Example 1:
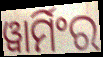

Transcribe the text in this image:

ୱାର୍ମିଂର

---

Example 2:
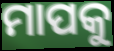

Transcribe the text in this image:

ମାପକୁ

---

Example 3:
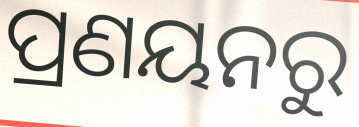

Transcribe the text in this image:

ପ୍ରଣୟନରୁ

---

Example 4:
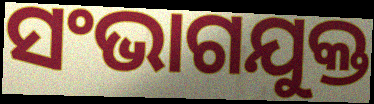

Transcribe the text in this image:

ସଂଭାଗଯୁକ୍ତ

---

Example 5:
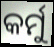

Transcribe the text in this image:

କର୍ମୁ